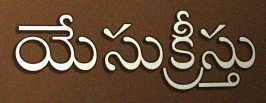
యేసుక్రీస్తు